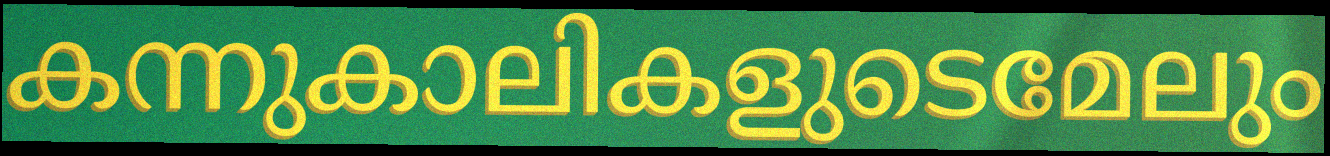
കന്നുകാലികളുടെമേലും